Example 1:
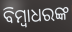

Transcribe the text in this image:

ବିମ୍ବାଧରଙ୍କ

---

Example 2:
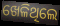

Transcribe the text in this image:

ଖେଳିଥିଲେ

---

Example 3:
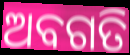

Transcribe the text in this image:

ଅବଗତି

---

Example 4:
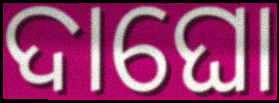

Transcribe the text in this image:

ଦାଘୋ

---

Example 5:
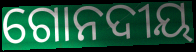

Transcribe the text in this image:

ଗୋନଦୀୟ